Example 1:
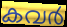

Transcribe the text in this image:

കവർ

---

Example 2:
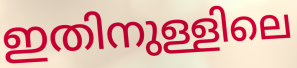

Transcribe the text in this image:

ഇതിനുള്ളിലെ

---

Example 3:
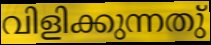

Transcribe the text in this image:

വിളിക്കുന്നതു്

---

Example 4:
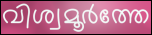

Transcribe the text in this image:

വിശ്വമൂർത്തേ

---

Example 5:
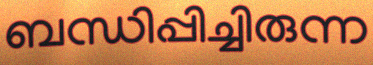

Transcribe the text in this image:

ബന്ധിപ്പിച്ചിരുന്ന